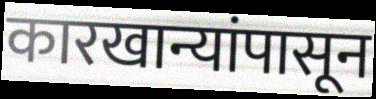
कारखान्यांपासून